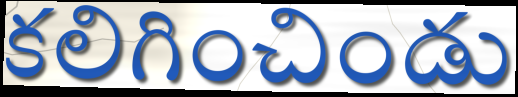
కలిగించిండు